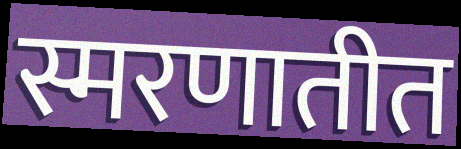
स्मरणातीत